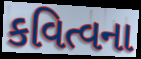
કવિત્વના